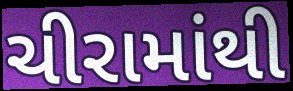
ચીરામાંથી